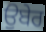
ਉਬੇਰ